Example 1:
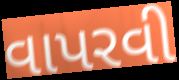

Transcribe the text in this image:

વાપરવી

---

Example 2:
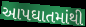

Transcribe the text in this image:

આપઘાતમાંથી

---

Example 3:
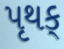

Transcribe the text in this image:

પૃથક્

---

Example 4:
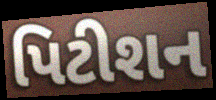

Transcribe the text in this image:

પિટીશન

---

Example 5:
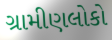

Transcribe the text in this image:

ગ્રામીણલોકો